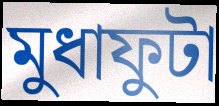
মুধাফুটা